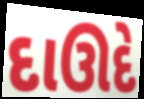
દાઊદે